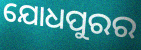
ଯୋଧପୁରର